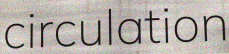
circulation